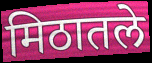
मिठातले